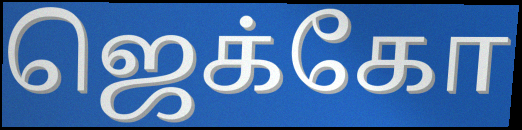
ஜெக்கோ